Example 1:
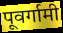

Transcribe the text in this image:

पूवर्गामी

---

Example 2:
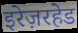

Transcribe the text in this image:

इरेज़रहेड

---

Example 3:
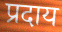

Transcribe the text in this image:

प्रदाय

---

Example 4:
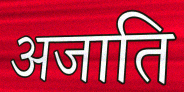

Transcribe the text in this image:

अजाति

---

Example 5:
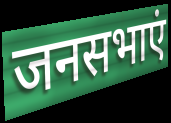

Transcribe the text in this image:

जनसभाएं